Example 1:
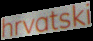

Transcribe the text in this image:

hrvatski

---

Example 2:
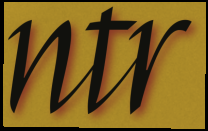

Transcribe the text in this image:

ntr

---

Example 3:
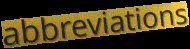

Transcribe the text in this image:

abbreviations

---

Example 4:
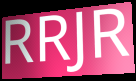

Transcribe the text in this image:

RRJR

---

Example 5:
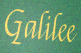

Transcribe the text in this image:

Galilee